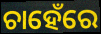
ଚାହେଁରେ